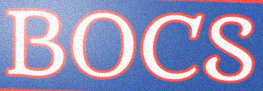
BOCS